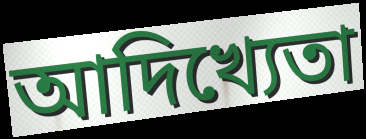
আদিখ্যেতা